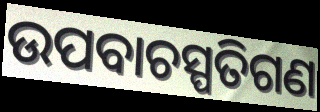
ଉପବାଚସ୍ପତିଗଣ